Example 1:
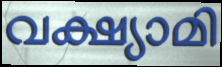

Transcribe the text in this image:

വക്ഷ്യാമി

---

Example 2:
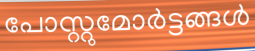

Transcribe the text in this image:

പോസ്റ്റുമോർട്ടങ്ങൾ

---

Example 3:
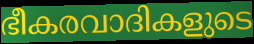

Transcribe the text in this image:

ഭീകരവാദികളുടെ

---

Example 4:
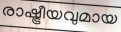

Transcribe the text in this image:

രാഷ്ട്രീയവുമായ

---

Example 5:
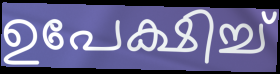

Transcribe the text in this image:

ഉപേക്ഷിച്ച്